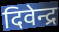
दिवेन्द्र